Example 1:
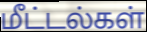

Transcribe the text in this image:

மீட்டல்கள்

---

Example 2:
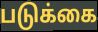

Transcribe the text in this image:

படுக்கை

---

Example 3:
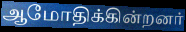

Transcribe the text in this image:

ஆமோதிக்கின்றனர்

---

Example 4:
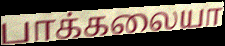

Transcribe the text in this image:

பாக்கலையா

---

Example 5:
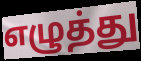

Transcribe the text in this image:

எழுத்து